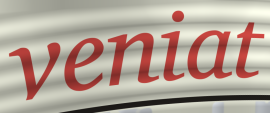
veniat